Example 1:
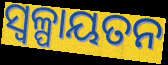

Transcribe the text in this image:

ସ୍ୱଳ୍ପାୟତନ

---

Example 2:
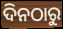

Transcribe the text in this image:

ଦିନଠାରୁ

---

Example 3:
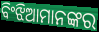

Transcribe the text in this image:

ବିଂଝିଆମାନଙ୍କର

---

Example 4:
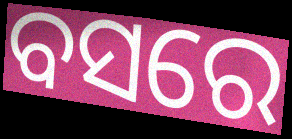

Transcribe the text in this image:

ବସରେ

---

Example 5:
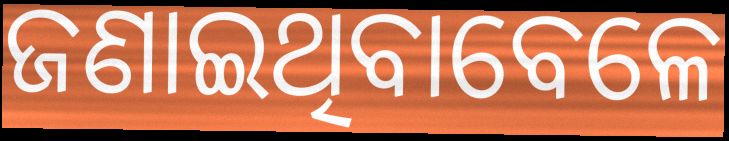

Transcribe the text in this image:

ଜଣାଇଥିବାବେଳେ